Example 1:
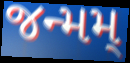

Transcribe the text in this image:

જન્મમ્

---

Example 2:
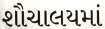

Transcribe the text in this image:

શૌચાલયમાં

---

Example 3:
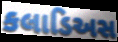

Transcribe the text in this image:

કલાડિઅસ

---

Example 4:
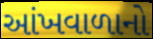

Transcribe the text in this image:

આંખવાળાનો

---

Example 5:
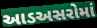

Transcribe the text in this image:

આડઅસરોમાં